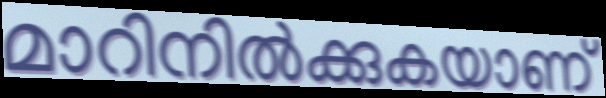
മാറിനിൽക്കുകയാണ്